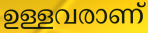
ഉള്ളവരാണ്